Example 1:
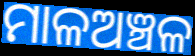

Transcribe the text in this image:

ମାଳଅଞ୍ଚଳ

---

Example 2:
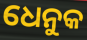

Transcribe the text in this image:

ଧେନୁକ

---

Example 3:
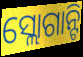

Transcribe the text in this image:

ସ୍ଲୋଗାନ୍ଟି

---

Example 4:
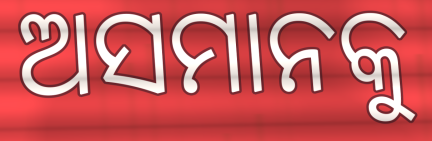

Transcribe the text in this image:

ଅସମାନକୁ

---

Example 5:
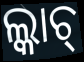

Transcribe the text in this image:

ଲ୍କାଚ୍